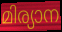
മിര്യാന